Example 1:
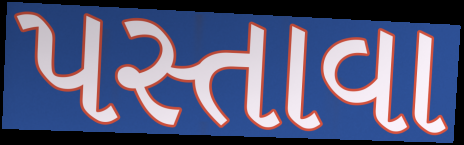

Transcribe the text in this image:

પસ્તાવા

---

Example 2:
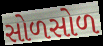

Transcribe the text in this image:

સોળસોળ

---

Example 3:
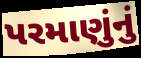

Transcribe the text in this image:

પરમાણુંનું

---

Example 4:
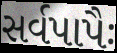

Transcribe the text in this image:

સર્વપાપૈઃ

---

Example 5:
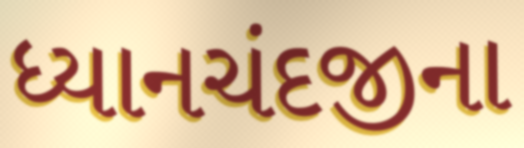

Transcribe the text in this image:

ધ્યાનચંદજીના